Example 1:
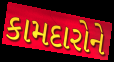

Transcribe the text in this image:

કામદારોને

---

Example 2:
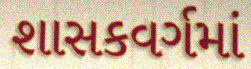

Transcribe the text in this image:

શાસકવર્ગમાં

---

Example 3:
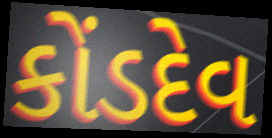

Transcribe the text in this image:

કોંડદેવ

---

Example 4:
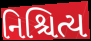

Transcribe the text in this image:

નિશ્ચિત્ય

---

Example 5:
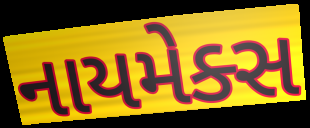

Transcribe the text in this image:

નાયમેક્સ